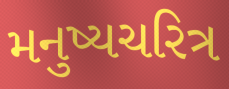
મનુષ્યચરિત્ર